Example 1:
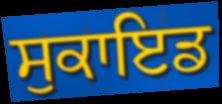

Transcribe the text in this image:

ਸੁਕਾਇਡ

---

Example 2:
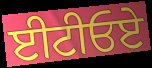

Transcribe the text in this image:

ਈਟੀਓਏ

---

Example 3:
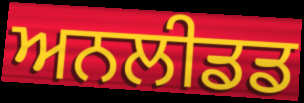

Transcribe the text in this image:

ਅਨਲੀਡਡ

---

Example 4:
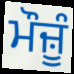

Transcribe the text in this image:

ਮੌਜ਼ੂੰ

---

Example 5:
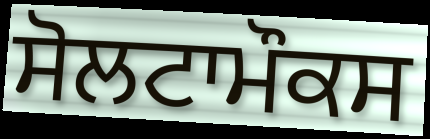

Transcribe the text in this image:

ਸੋਲਟਾਮੌਕਸ